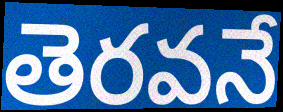
తెరవనే